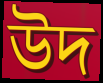
উদ